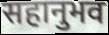
सहानुभव